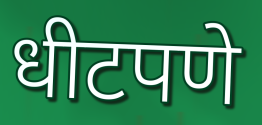
धीटपणे